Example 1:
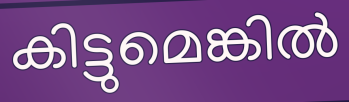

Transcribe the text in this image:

കിട്ടുമെങ്കിൽ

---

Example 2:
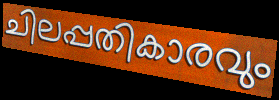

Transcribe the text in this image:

ചിലപ്പതികാരവും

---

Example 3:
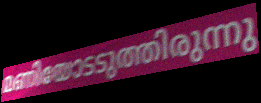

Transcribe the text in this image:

മണിയോടടുത്തിരുന്നു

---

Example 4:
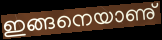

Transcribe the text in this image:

ഇങ്ങനെയാണു്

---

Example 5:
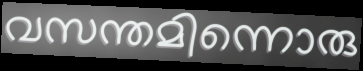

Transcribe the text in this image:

വസന്തമിന്നൊരു